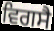
ਵਿਗਸੈ